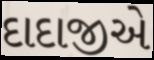
દાદાજીએ